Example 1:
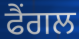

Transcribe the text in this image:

ਫੈਂਗਲ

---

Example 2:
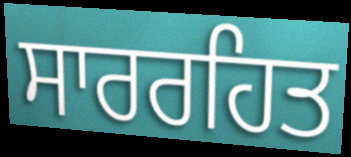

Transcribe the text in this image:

ਸਾਰਰਹਿਤ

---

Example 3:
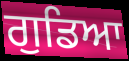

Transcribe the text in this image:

ਗੁਡਿਆ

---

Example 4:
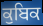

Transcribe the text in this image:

ਕੁਬਿਕ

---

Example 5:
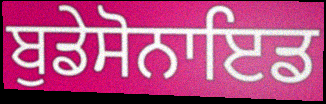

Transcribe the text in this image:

ਬੁਡੇਸੋਨਾਇਡ